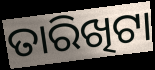
ତାରିଖିଟା